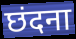
छंदना